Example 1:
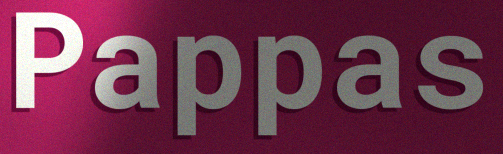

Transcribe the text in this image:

Pappas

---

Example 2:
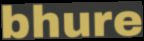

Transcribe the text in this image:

bhure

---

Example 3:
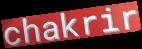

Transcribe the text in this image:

chakrir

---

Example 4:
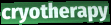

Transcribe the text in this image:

cryotherapy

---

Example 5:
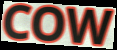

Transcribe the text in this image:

COW